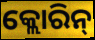
କ୍ଲୋରିନ୍